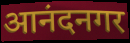
आनंदनगर